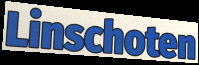
Linschoten